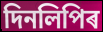
দিনলিপিৰ